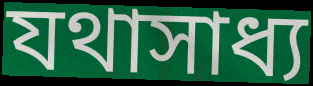
যথাসাধ্য